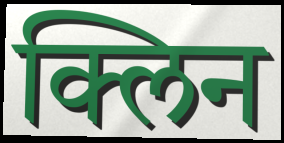
क्लिन